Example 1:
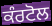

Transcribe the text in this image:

ਕੰਰਟੋਲ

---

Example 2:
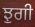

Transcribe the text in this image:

ਝੁਗੀ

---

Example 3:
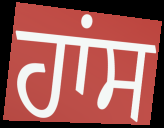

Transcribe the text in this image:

ਹਾਂਸ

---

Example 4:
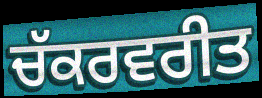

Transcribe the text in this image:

ਚੱਕਰਵਰੀਤ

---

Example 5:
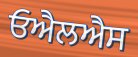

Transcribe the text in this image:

ਓਐਲਐਸ